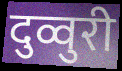
दुव्वुरी